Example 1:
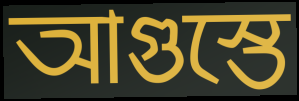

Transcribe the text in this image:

আগুস্তে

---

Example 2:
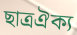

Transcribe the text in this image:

ছাত্রঐক্য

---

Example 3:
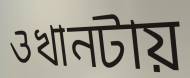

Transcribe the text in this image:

ওখানটায়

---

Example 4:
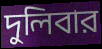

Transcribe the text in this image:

দুলিবার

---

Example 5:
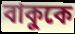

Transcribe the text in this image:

বাকুকে